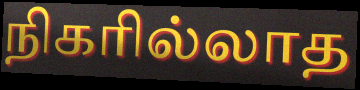
நிகரில்லாத